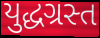
યુદ્ધગ્રસ્ત